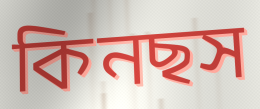
কিনছস